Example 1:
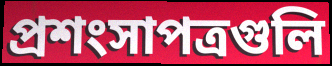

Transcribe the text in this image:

প্রশংসাপত্রগুলি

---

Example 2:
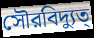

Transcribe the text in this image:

সৌরবিদ্যুত্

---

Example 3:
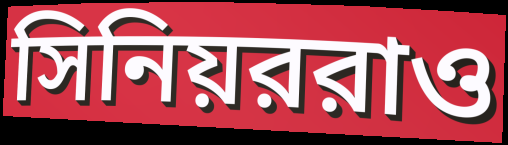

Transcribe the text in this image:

সিনিয়ররাও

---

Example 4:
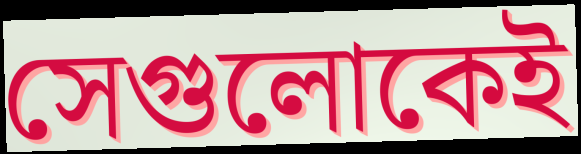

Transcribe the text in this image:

সেগুলোকেই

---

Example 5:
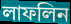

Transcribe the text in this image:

লাফলিন